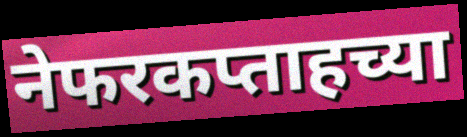
नेफरकप्ताहच्या